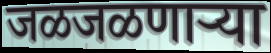
जळजळणाऱ्या